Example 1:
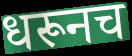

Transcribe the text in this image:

धरूनच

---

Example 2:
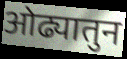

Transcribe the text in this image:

ओढ्यातुन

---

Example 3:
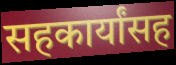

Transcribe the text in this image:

सहकार्यांसह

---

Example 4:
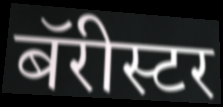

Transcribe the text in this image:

बॅरीस्टर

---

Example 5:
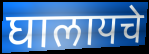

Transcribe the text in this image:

घालायचे